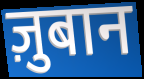
ज़ुबान